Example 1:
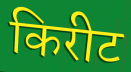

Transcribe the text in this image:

किरीट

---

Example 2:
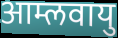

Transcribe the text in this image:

आम्लवायु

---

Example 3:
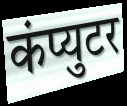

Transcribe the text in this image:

कंप्युटर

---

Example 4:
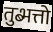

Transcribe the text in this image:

तुब्भत्तो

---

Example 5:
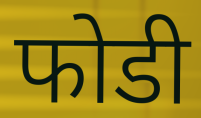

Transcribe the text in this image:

फोडी